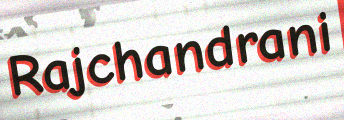
Rajchandrani